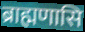
ब्राह्मणासि